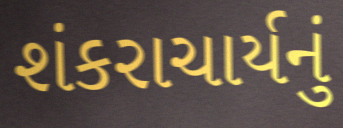
શંકરાચાર્યનું